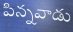
పిన్నవాడు